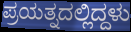
ಪ್ರಯತ್ನದಲ್ಲಿದ್ದಳು